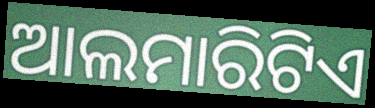
ଆଲମାରିଟିଏ